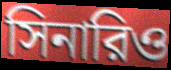
সিনারিও